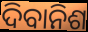
ଦିବାନିଶ